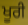
ਖੂਰੀ